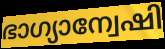
ഭാഗ്യാന്വേഷി